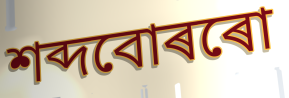
শব্দবোৰৰো